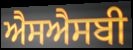
ਐਸਐਸਬੀ